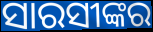
ସାରସୀଙ୍କର